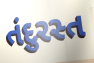
તંદુરસ્ત